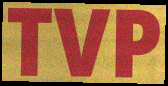
TVP